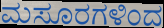
ಮಸೂರಗಳಿಂದ